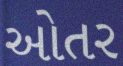
ઓતર